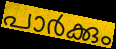
പാർക്കും